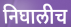
निघालीच